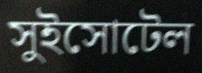
সুইসোটেল